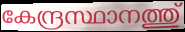
കേന്ദ്രസ്ഥാനത്തു്